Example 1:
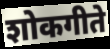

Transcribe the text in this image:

शोकगीते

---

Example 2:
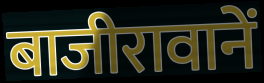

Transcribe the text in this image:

बाजीरावानें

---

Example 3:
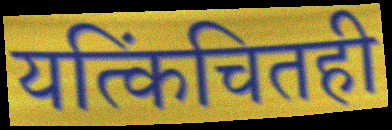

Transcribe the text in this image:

यत्किंचितही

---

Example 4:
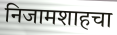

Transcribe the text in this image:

निजामशाहचा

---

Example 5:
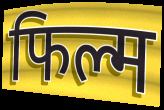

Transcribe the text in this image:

फिल्म